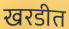
खरडीत